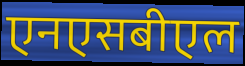
एनएसबीएल